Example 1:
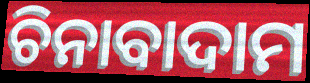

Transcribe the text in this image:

ଚିନାବାଦାମ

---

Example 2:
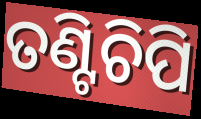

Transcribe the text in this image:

ତଣ୍ଟିଚିପି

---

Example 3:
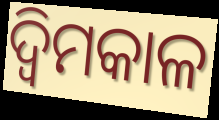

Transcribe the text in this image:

ଦ୍ବିମକାଳ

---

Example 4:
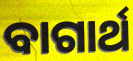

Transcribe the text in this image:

ବାଗାର୍ଥ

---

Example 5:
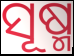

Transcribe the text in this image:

ସୂଷ୍ମ